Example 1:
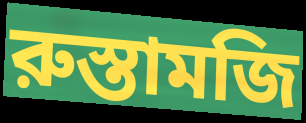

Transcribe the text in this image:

রুস্তামজি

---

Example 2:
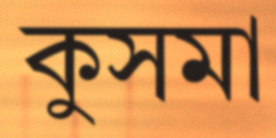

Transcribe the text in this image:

কুসমা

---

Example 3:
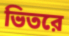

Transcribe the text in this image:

ভিতরে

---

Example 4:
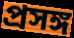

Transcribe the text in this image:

প্রসঙ্গ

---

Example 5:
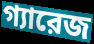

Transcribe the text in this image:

গ্যারেজ